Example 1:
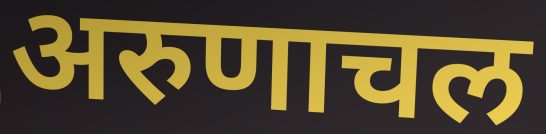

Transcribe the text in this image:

अरुणाचल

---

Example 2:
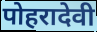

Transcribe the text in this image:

पोहरादेवी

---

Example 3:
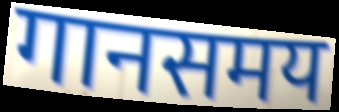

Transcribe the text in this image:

गानसमय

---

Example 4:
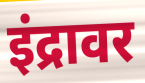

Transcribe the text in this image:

इंद्रावर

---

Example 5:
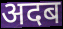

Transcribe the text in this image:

अदब